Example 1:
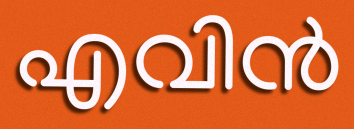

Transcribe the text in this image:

എവിൻ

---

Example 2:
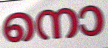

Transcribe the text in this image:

നൊ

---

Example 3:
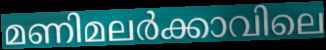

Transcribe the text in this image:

മണിമലർക്കാവിലെ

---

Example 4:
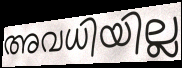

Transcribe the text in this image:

അവധിയില്ല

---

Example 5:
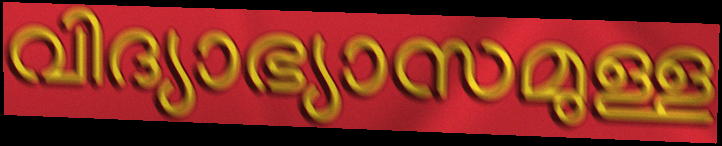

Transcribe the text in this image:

വിദ്യാഭ്യാസമുള്ള